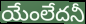
యేంలేదనీ